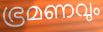
ഭ്രമണവും